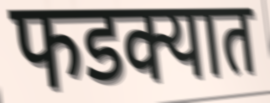
फडक्यात